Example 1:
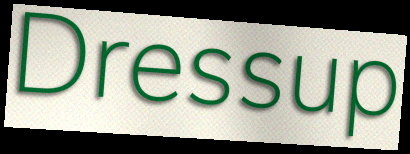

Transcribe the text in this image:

Dressup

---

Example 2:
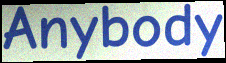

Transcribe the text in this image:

Anybody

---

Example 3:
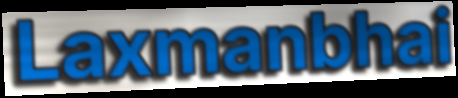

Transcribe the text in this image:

Laxmanbhai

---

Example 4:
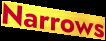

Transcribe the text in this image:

Narrows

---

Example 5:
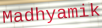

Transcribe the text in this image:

Madhyamik